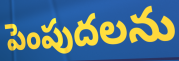
పెంపుదలను